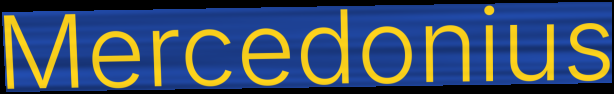
Mercedonius